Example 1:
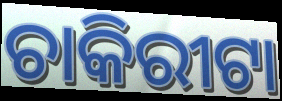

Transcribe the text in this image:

ଚାକିରୀଟା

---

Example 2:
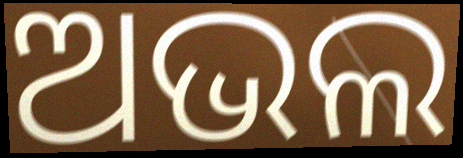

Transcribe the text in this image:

ଅଭଲ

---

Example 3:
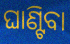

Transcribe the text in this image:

ଘାଣ୍ଟିବା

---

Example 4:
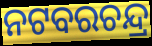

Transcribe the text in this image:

ନଟବରଚନ୍ଦ୍ର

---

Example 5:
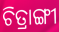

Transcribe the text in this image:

ଚିତ୍ରାଙ୍ଗୀ